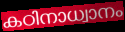
കഠിനാധ്വാനം